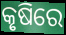
କୃଷିରେ